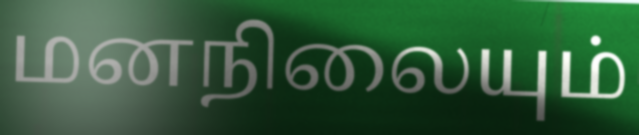
மனநிலையும்